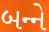
બન્‍ને